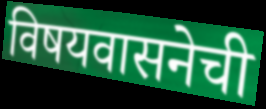
विषयवासनेची